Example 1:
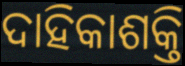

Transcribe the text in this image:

ଦାହିକାଶକ୍ତି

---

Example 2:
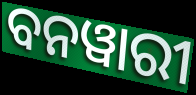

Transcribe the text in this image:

ବନୱାରୀ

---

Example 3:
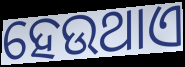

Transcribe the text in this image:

ହେଉଥାଏ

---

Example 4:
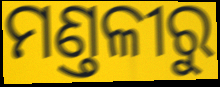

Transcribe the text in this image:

ମଣ୍ତଳୀରୁ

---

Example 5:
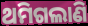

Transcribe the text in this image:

ଥମିଗଲାଣି